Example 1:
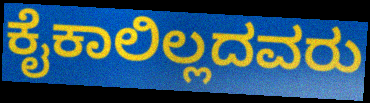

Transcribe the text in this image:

ಕೈಕಾಲಿಲ್ಲದವರು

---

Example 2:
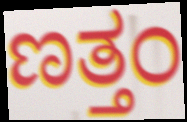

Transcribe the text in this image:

ಣತ್ತಂ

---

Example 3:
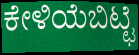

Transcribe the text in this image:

ಕೇಳಿಯೆಬಿಟ್ಟೆ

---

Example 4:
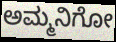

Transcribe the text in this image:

ಅಮ್ಮನಿಗೋ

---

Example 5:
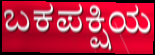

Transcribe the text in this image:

ಬಕಪಕ್ಷಿಯ